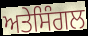
ਅਤੇਸਿੰਗਲ